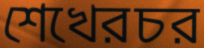
শেখেরচর